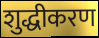
शुद्धीकरण